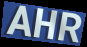
AHR